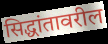
सिद्धांतावरील